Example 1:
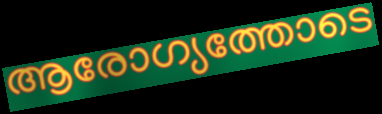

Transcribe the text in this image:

ആരോഗ്യത്തോടെ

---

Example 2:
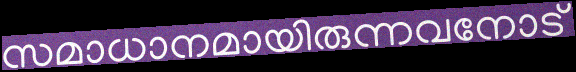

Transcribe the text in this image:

സമാധാനമായിരുന്നവനോട്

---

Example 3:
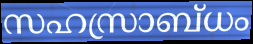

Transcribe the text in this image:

സഹസ്രാബ്ധം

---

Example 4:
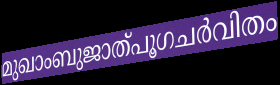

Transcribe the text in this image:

മുഖാംബുജാത്പൂഗചർവിതം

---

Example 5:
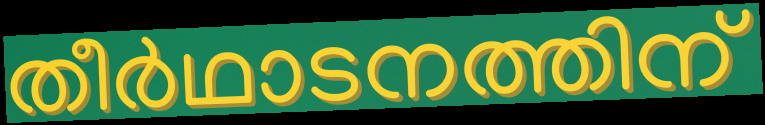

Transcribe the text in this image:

തീർഥാടനത്തിന്